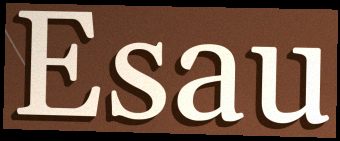
Esau